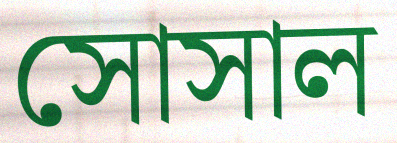
সোসাল